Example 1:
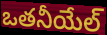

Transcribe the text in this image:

ఒతనీయేల్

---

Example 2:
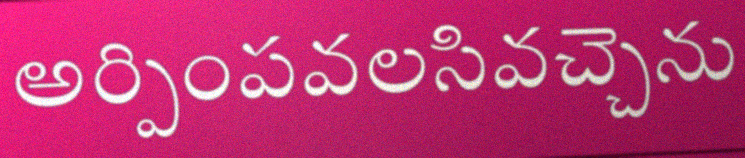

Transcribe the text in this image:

అర్పింపవలసివచ్చెను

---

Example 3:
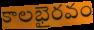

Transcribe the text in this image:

కాలభైరవం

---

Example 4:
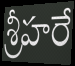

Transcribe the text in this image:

శ్రీహరే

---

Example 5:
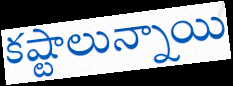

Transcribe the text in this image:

కష్టాలున్నాయి